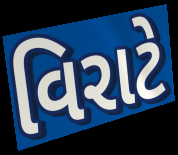
વિરાટે